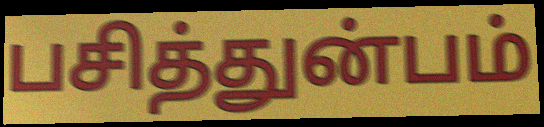
பசித்துன்பம்